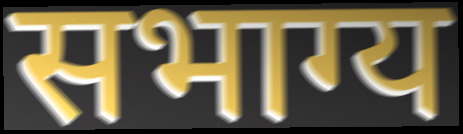
सभाग्य